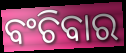
ବଂଚିବାର